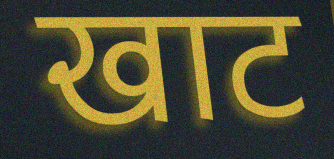
खाट